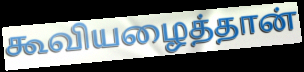
கூவியழைத்தான்